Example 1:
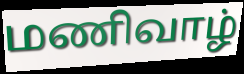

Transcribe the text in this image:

மணிவாழ்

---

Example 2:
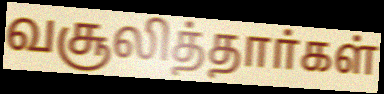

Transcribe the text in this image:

வசூலித்தார்கள்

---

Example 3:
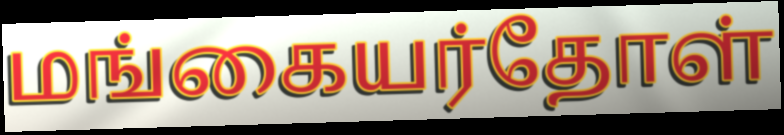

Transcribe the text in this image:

மங்கையர்தோள்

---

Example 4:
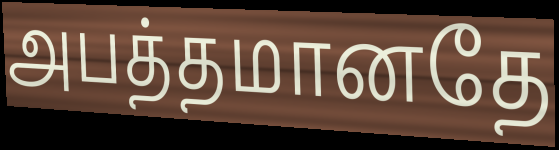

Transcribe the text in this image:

அபத்தமானதே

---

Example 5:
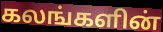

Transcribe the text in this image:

கலங்களின்